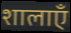
शालाएँ